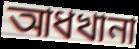
আধখানা